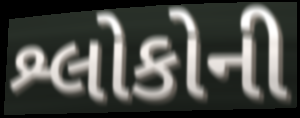
શ્લોકોની